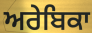
ਅਰੇਬਿਕਾ